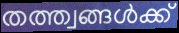
തത്ത്വങ്ങൾക്ക്